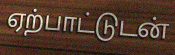
ஏற்பாட்டுடன்